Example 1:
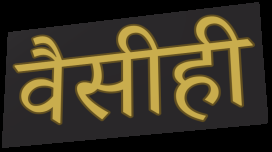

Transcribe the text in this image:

वैसीही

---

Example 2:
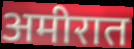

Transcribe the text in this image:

अमीरात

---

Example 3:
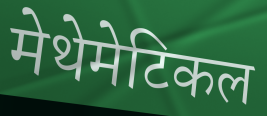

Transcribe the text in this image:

मेथेमेटिकल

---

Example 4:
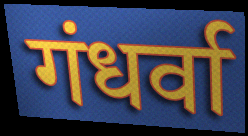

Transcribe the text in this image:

गंधर्वा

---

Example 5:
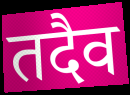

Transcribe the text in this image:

तदैव